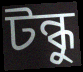
টন্ধু